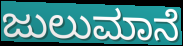
ಜುಲುಮಾನೆ